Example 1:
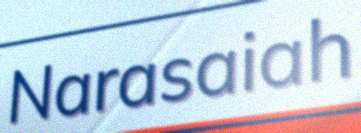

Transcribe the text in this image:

Narasaiah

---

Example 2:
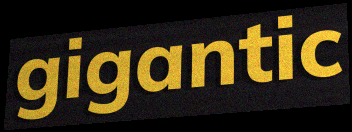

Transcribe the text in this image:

gigantic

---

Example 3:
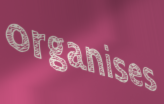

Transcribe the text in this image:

organises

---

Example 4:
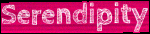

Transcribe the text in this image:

Serendipity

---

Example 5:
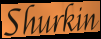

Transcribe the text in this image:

Shurkin